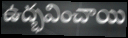
ఉద్భవించాయి